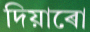
দিয়াৰো